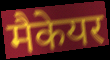
मैकेयर